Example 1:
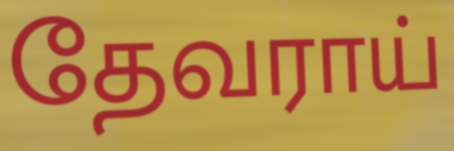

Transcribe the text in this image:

தேவராய்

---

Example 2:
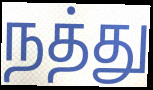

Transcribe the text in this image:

நத்து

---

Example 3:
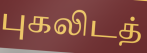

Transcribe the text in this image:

புகலிடத்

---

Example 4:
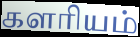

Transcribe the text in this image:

களரியம்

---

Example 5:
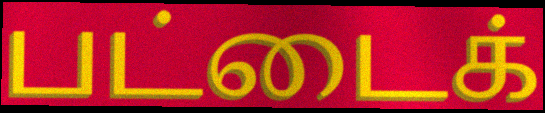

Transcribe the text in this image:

பட்டைக்